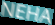
NEHA